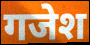
गजेश